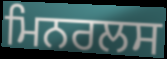
ਮਿਨਰਲਸ